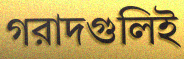
গরাদগুলিই